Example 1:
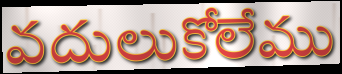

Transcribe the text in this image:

వదులుకోలేము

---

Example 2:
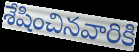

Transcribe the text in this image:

శేషించినవారికి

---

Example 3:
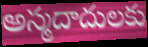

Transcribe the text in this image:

అస్మదాదులకు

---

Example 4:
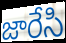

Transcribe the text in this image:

జారేసి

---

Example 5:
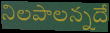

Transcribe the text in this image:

నిలపాలన్నదే